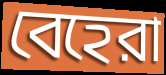
বেহেরা